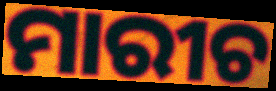
ମାରୀଚ